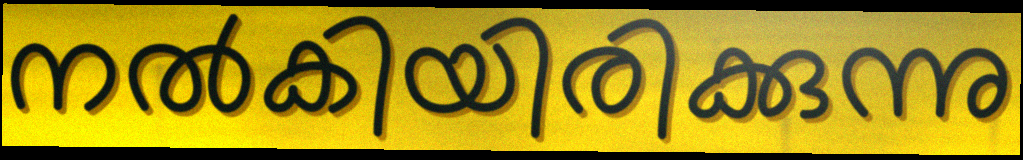
നൽകിയിരിക്കുന്നു